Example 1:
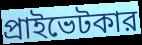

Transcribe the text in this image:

প্রাইভেটকার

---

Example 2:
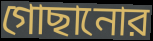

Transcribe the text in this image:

গোছানোর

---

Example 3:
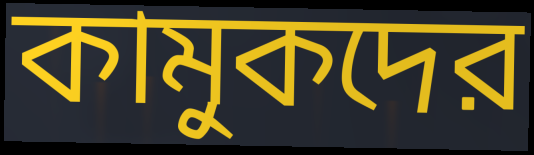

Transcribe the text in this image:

কামুকদের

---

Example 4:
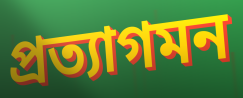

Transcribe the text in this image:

প্রত্যাগমন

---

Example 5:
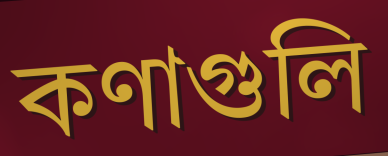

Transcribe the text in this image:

কণাগুলি